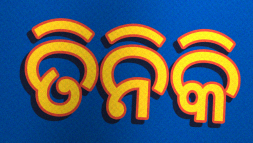
ତିନିକି